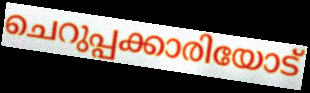
ചെറുപ്പക്കാരിയോട്